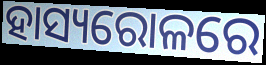
ହାସ୍ୟରୋଳରେ